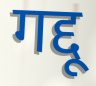
गद्दू